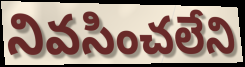
నివసించలేని